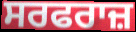
ਸਰਫਰਾਜ਼